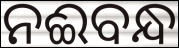
ନଈବନ୍ଧ